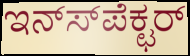
ಇನ್ಸ್‍ಪೆಕ್ಟರ್